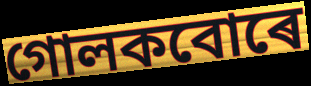
গোলকবোৰে